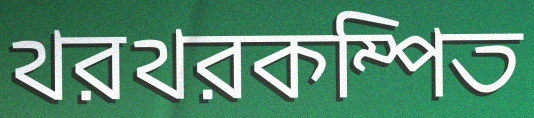
থরথরকম্পিত